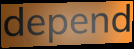
depend